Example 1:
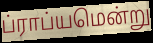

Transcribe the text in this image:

ப்ராப்யமென்று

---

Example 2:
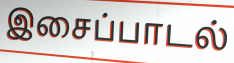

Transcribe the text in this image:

இசைப்பாடல்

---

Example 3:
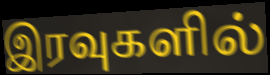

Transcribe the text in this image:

இரவுகளில்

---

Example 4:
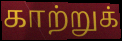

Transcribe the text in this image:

காற்றுக்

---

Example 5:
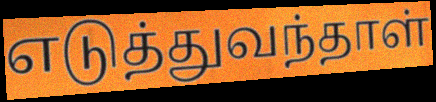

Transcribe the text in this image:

எடுத்துவந்தாள்